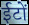
ईटों